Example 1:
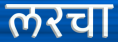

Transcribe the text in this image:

लरचा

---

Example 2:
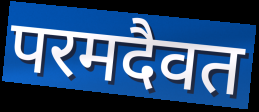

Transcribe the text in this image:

परमदैवत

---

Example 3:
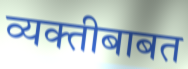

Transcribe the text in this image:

व्यक्तीबाबत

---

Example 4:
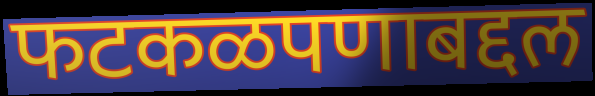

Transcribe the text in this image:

फटकळपणाबद्दल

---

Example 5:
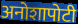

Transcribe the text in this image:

अनोशापोटी